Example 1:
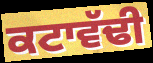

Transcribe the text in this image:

ਕਟਾਵੱਢੀ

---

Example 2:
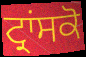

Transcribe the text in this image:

ਟ੍ਰਾਂਸਕੋ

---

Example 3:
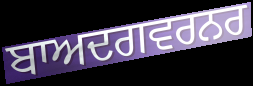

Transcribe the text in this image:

ਬਾਅਦਗਵਰਨਰ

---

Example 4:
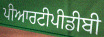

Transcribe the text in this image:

ਪੀਆਰਟੀਪੀਡੀਬੀ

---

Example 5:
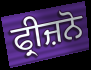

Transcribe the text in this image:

ਫ੍ਰੀਜ਼ਨੋ